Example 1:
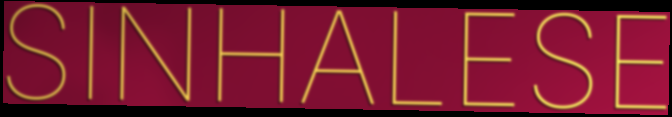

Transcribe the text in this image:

SINHALESE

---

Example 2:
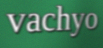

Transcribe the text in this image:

vachyo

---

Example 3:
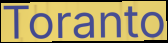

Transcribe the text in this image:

Toranto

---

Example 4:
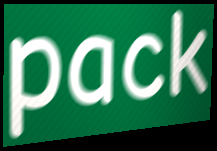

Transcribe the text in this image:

pack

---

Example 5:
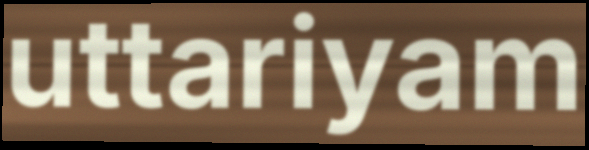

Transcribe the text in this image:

uttariyam